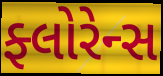
ફ્લોરેન્સ